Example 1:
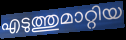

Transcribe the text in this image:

എടുത്തുമാറ്റിയ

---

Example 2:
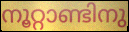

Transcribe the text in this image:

നൂറ്റാണ്ടിനു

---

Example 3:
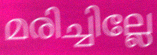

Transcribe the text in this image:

മരിച്ചില്ലേ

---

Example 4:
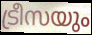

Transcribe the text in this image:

ട്രീസയും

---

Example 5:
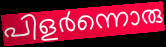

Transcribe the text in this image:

പിളർന്നൊരു